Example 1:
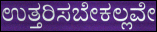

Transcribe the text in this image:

ಉತ್ತರಿಸಬೇಕಲ್ಲವೇ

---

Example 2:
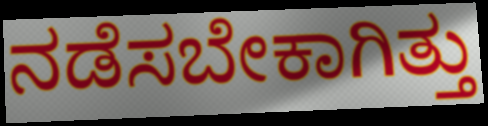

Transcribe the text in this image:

ನಡೆಸಬೇಕಾಗಿತ್ತು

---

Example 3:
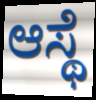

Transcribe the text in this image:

ಆಸ್ಥೆ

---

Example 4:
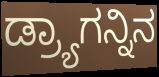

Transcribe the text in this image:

ಡ್ರ್ಯಾಗನ್ನಿನ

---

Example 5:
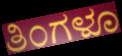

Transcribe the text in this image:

ತಿಂಗಳೂ